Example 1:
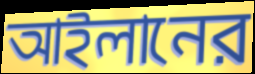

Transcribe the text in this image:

আইলানের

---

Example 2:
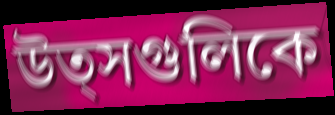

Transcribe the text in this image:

উত্সগুলিকে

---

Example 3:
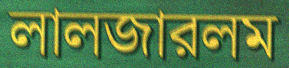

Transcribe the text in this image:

লালজারলম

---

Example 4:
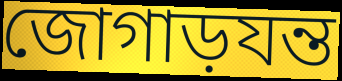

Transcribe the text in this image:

জোগাড়যন্ত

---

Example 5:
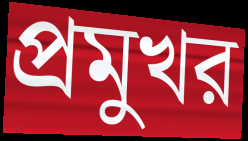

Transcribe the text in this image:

প্রমুখর